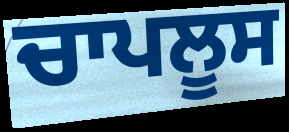
ਚਾਪਲੂਸ